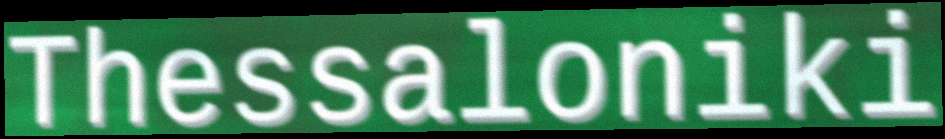
Thessaloniki